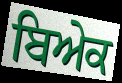
ਬਿਅੇਕ